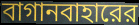
বাগানবাহারের